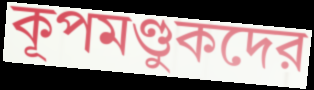
কূপমণ্ডুকদের